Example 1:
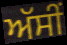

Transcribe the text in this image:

ਅੱਸੀਂ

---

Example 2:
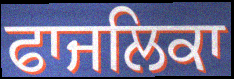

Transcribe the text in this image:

ਫਾਜਲਿਕਾ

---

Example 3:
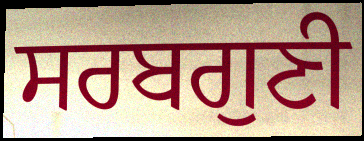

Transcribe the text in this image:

ਸਰਬਗੁਣੀ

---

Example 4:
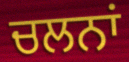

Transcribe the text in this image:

ਚਲਨਾਂ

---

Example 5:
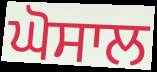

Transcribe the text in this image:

ਘੋਸਾਲ